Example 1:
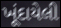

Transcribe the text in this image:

ખૂંદાયેલી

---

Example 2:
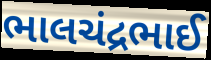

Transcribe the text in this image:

ભાલચંદ્રભાઈ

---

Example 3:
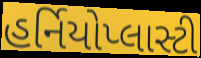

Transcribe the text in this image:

હર્નિયોપ્લાસ્ટી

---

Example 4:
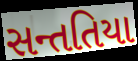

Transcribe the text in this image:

સન્તતિયા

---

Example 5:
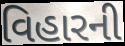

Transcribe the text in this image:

વિહારની